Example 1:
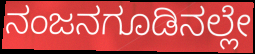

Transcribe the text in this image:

ನಂಜನಗೂಡಿನಲ್ಲೇ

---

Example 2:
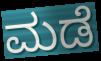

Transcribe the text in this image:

ಮಡೆ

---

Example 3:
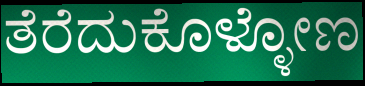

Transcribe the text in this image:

ತೆರೆದುಕೊಳ್ಳೋಣ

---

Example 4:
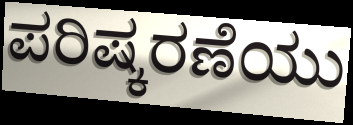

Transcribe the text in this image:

ಪರಿಷ್ಕರಣೆಯು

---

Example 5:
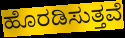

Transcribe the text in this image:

ಹೊರಡಿಸುತ್ತವೆ